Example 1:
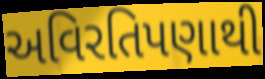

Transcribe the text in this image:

અવિરતિપણાથી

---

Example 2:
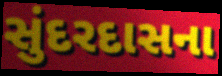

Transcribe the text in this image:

સુંદરદાસના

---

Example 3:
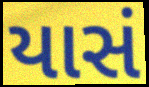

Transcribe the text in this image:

યાસં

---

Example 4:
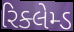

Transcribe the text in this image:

રિક્લેમ્ડ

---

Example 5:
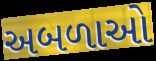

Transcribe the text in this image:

અબળાઓ